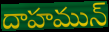
దాహమున్